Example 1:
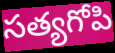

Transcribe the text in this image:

సత్యగోపి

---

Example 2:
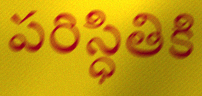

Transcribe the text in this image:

పరిస్ధితికి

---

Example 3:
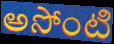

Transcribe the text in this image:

అసోంటి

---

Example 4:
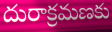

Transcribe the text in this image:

దురాక్రమణకు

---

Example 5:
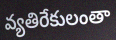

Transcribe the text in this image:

వ్యతిరేకులంతా